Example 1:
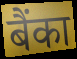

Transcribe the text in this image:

बैंका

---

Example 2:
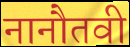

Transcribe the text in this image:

नानौतवी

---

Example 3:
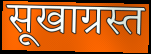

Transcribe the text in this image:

सूखाग्रस्त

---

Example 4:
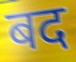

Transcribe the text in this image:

बद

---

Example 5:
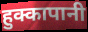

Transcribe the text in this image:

हुक्कापानी